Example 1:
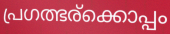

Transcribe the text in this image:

പ്രഗത്ഭര്ക്കൊപ്പം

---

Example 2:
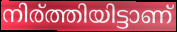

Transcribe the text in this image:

നിര്ത്തിയിട്ടാണ്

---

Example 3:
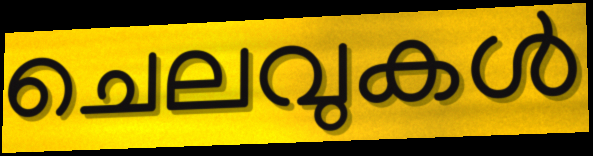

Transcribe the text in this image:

ചെലവുകൾ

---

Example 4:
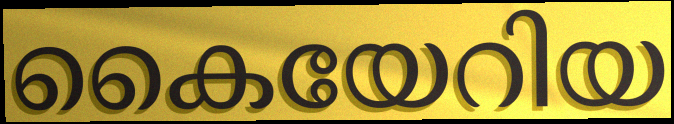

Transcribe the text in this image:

കൈയേറിയ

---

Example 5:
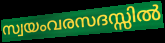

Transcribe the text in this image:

സ്വയംവരസദസ്സിൽ